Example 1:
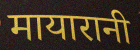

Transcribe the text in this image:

मायारानी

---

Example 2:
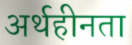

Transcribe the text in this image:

अर्थहीनता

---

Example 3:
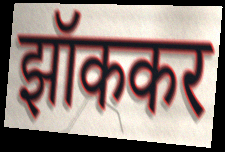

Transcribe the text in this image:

झॉककर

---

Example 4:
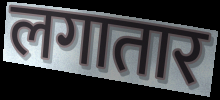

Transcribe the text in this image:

लगातार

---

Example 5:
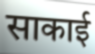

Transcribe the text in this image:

साकाई